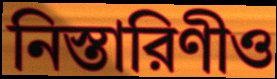
নিস্তারিণীও